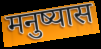
मनुष्यास